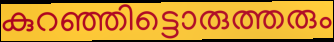
കുറഞ്ഞിട്ടൊരുത്തരും